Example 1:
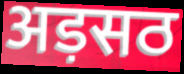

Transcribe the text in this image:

अड़सठ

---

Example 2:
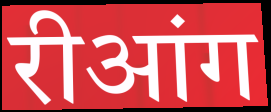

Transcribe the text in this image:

रीआंग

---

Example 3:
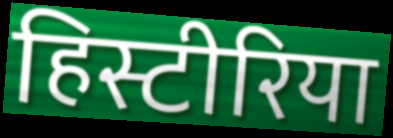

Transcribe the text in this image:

हिस्टीरिया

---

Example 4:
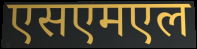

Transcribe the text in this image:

एसएमएल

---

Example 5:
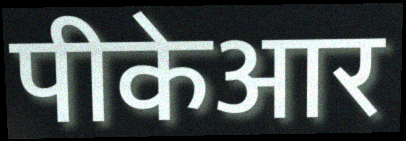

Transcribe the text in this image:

पीकेआर